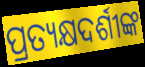
ପ୍ରତ୍ୟକ୍ଷଦର୍ଶୀଙ୍କ